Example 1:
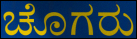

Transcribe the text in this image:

ಚೊಗರು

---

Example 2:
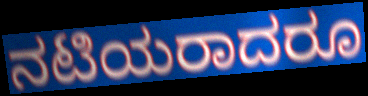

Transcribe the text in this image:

ನಟಿಯರಾದರೂ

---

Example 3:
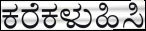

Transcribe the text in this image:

ಕರೆಕಳುಹಿಸಿ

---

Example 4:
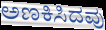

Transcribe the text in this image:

ಅಣಕಿಸಿದವು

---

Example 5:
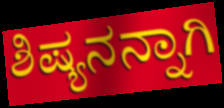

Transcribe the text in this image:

ಶಿಷ್ಯನನ್ನಾಗಿ